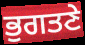
ਭੁਗਤਣੇ